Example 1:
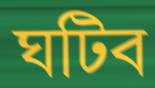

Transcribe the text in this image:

ঘটিব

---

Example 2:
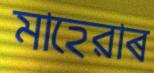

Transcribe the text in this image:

মাহেৱাৰ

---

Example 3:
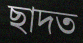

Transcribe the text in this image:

ছাদত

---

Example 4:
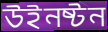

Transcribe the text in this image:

উইনষ্টন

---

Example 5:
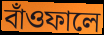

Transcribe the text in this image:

বাঁওফালে